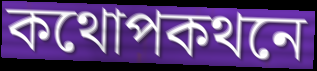
কথোপকথনে